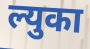
ल्युका